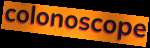
colonoscope